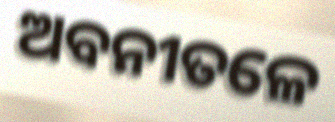
ଅବନୀତଳେ